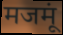
मजमूं